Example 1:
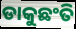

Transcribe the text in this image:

ଡାକୁଛଂତି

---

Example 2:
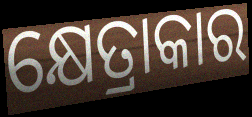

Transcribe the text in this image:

କ୍ଷେତ୍ରାକାର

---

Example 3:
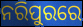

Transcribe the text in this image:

ନରିପୁରରେ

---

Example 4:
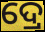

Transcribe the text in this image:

ଦ୍ରେ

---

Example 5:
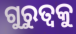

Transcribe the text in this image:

ଗୁରୁତ୍ବକୁ